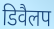
डिवैलप